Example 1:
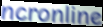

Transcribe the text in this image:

ncronline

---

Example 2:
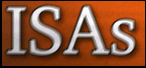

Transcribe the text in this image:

ISAs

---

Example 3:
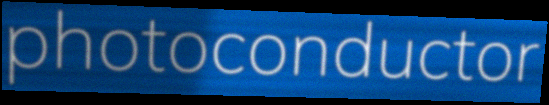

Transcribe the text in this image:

photoconductor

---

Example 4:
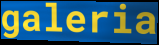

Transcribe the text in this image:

galeria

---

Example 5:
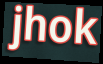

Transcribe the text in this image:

jhok